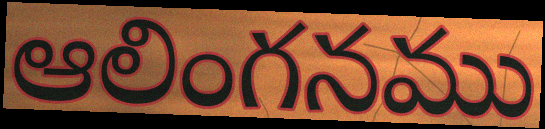
ఆలింగనము